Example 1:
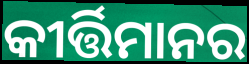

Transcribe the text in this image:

କୀର୍ତ୍ତିମାନର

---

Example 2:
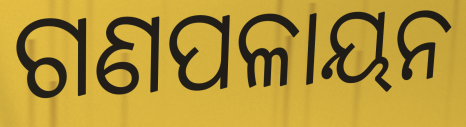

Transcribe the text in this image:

ଗଣପଳାୟନ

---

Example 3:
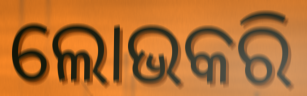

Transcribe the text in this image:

ଲୋଭକରି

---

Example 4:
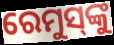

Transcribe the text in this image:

ରେମୁସ୍‌ଙ୍କୁ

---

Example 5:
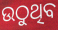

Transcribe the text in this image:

ଉଠୁଥିବ